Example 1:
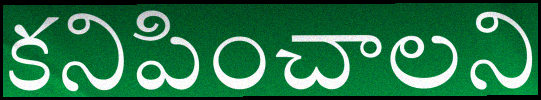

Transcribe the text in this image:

కనిపించాలని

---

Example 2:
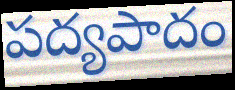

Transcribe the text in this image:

పద్యపాదం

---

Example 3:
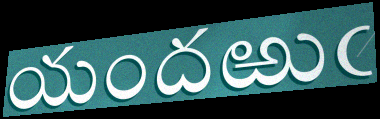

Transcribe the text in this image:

యందఱుఁ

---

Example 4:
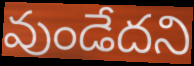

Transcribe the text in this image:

వుండేదని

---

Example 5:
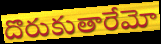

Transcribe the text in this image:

దొరుకుతారేమో